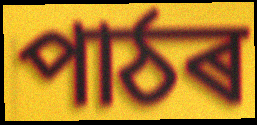
পাঠৰ